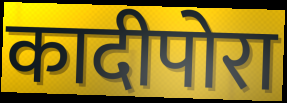
कादीपोरा